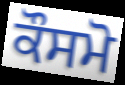
ਕੌਸਮੋ